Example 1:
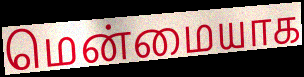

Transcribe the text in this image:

மென்மையாக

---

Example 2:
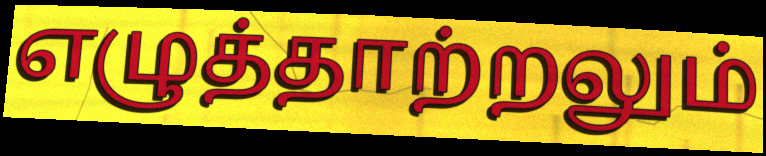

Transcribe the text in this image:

எழுத்தாற்றலும்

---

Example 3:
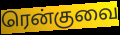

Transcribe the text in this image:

ரென்குவை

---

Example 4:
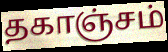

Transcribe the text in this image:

தகாஞ்சம்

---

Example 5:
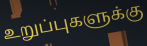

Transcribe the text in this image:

உறுப்புகளுக்கு